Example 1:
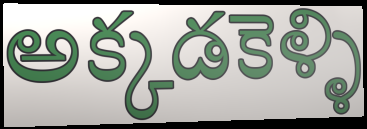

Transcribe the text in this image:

అక్కడకెళ్ళి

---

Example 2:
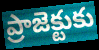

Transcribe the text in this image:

ప్రాజెక్టుకు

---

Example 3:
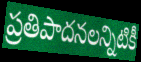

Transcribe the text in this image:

ప్రతిపాదనలన్నిటికీ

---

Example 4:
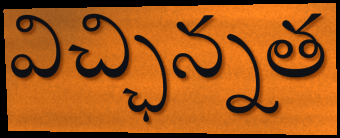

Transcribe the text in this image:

విచ్ఛిన్నత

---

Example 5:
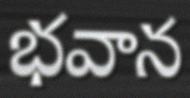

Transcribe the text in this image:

భవాన